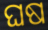
ଘଷ